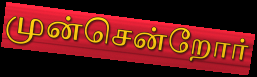
முன்சென்றோர்